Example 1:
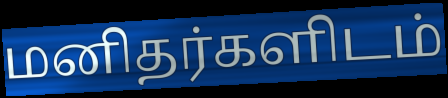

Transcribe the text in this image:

மனிதர்களிடம்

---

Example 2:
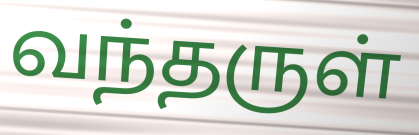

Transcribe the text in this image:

வந்தருள்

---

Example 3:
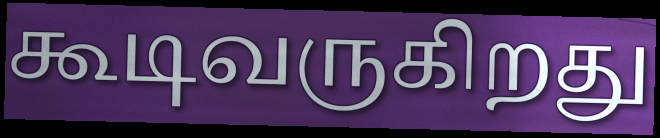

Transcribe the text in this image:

கூடிவருகிறது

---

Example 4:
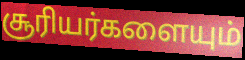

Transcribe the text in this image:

சூரியர்களையும்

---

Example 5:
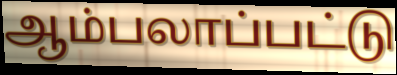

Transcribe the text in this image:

ஆம்பலாப்பட்டு